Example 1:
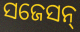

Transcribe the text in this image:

ସଜେସନ୍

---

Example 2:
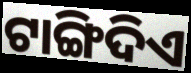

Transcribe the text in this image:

ଟାଙ୍ଗିଦିଏ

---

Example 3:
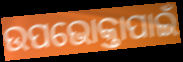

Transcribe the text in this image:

ଉପଭୋକ୍ତାପାଇଁ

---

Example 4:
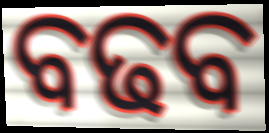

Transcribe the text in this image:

ବଢବ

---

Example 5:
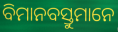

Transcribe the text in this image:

ବିମାନବସ୍ତୁମାନେ